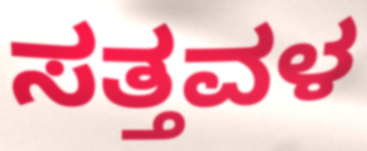
ಸತ್ತವಳ